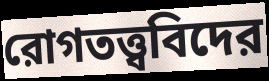
রোগতত্ত্ববিদের